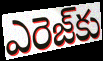
ఎరెజ్‌కు